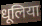
धूलिया